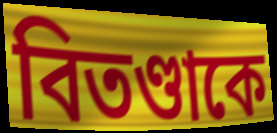
বিতণ্ডাকে